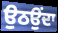
ਉਠਉਂਦਾ